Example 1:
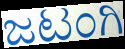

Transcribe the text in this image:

ಜಟಂಗಿ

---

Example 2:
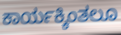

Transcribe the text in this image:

ಕಾರ್ಯಕ್ಕಿಂತಲೂ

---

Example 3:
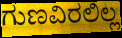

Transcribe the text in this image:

ಗುಣವಿರಲಿಲ್ಲ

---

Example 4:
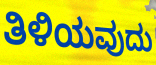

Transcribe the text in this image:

ತಿಳಿಯವುದು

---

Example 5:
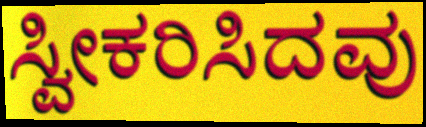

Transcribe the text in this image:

ಸ್ವೀಕರಿಸಿದವು